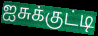
ஐசுக்குட்டி